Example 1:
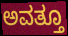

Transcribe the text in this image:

ಅವತ್ತೂ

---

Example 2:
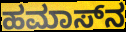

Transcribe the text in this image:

ಹಮಾಸ್‌ನ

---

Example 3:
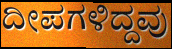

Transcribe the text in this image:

ದೀಪಗಳಿದ್ದವು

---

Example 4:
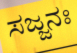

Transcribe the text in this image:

ಸಜ್ಜನಃ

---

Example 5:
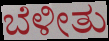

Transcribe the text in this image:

ಬೆಳೀತು